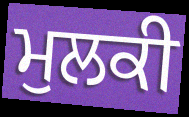
ਮੁਲਕੀ